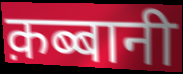
क़ब्बानी